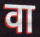
वा